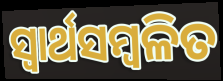
ସ୍ଵାର୍ଥସମ୍ବଳିତ